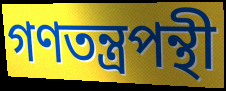
গণতন্ত্রপন্থী